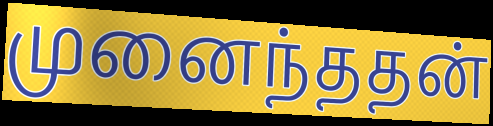
முனைந்ததன்